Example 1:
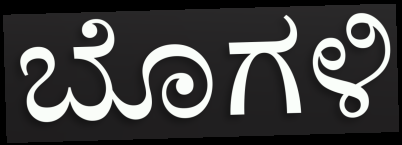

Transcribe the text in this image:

ಬೊಗಳಿ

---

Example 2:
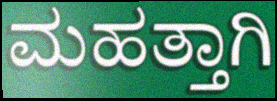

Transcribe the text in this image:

ಮಹತ್ತಾಗಿ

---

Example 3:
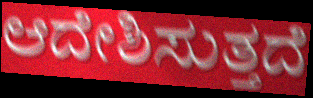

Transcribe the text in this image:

ಆದೇಶಿಸುತ್ತದೆ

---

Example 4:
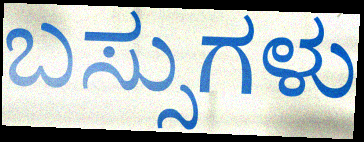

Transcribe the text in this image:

ಬಸ್ಸುಗಳು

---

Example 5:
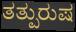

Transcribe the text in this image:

ತತ್ಪುರುಷ